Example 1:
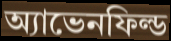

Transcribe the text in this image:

অ্যাভেনফিল্ড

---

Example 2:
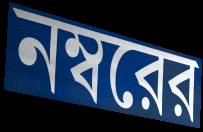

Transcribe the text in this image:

নম্বরের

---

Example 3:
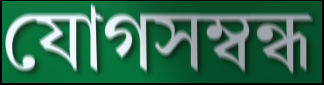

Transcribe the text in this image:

যোগসম্বন্ধ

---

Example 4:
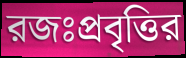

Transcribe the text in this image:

রজঃপ্রবৃত্তির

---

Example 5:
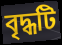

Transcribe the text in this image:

বৃদ্ধটি